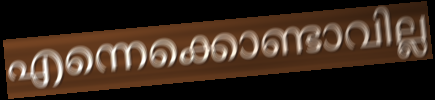
എന്നെക്കൊണ്ടാവില്ല